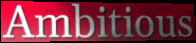
Ambitious